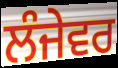
ਲੰਜੇਵਰ